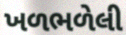
ખળભળેલી